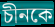
চীনকে